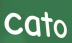
cato